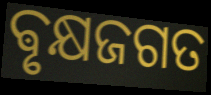
ଵୃକ୍ଷଜଗତ